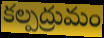
కల్పద్రుమం